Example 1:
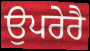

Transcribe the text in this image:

ਉਪਰੇਰੈ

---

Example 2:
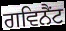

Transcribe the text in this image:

ਗਵਿਨੈਂਟ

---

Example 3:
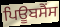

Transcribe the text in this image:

ਪਿਊਬਸੈਂਸ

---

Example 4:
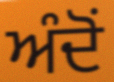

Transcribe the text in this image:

ਅੰਦੋਂ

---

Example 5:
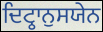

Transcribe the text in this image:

ਦਿਟ੍ਠਾਨੁਸਯੇਨ